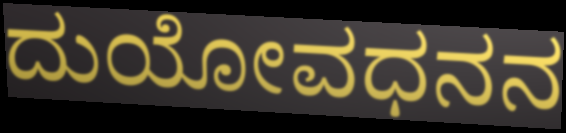
ದುಯೋವಧನನ